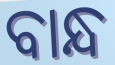
ବାନ୍ଧ